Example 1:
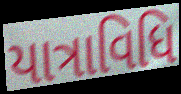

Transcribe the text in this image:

યાત્રાવિધિ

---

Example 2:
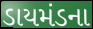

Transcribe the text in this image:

ડાયમંડના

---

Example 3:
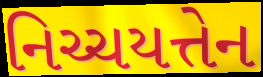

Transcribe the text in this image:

નિચ્ચયત્તેન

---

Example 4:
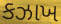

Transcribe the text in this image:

કઝાખ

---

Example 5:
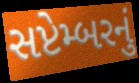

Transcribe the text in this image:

સપ્ટેમ્બરનું